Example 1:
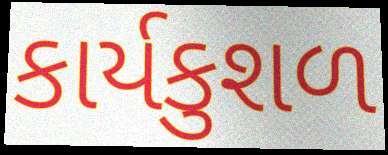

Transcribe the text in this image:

કાર્યકુશળ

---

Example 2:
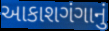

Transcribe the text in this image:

આકાશગંગાનું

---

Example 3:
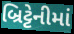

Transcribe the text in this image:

બ્રિટ્ટેનીમાં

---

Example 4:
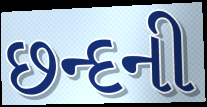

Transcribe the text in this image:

છન્દની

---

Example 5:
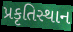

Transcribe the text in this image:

પ્રકૃતિસ્થાન